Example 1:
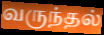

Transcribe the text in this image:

வருந்தல்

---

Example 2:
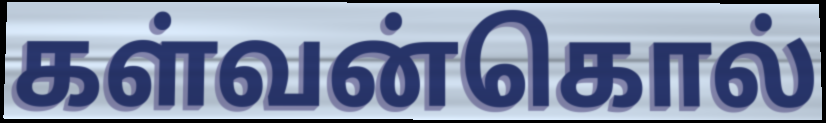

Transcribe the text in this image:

கள்வன்கொல்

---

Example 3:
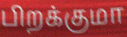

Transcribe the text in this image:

பிறக்குமா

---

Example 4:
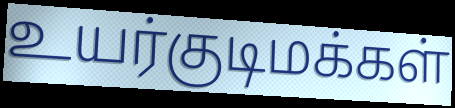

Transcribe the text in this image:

உயர்குடிமக்கள்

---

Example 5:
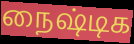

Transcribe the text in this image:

நைஷ்டிக